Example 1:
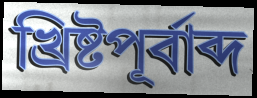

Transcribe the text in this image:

খ্রিষ্টপূর্বাব্দ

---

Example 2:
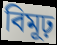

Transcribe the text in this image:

বিমূঢ়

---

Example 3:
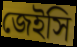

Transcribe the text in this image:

জেইসি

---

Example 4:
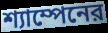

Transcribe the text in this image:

শ্যাম্পেনের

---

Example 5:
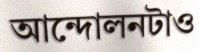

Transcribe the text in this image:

আন্দোলনটাও